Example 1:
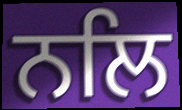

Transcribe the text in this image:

ਨਲਿ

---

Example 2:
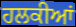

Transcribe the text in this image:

ਹਲਕੀਆਂ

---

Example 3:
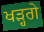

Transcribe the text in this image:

ਖੜ੍ਹਗੇ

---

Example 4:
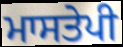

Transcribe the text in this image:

ਮਾਸਤੇਪੀ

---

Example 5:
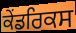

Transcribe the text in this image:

ਕੇਂਡਰਿਕਸ